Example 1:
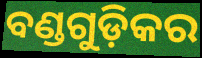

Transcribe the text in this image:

ବଣ୍ଡଗୁଡ଼ିକର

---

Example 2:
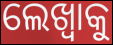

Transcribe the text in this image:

ଲେଖ୍ବାକୁ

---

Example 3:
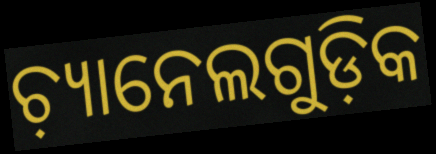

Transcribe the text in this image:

ଚ଼୍ୟାନେଲଗୁଡ଼ିକ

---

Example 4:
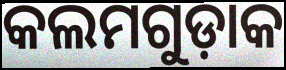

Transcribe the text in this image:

କଲମଗୁଡ଼ାକ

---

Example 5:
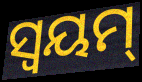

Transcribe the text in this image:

ସ୍ୱୟମ୍